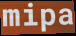
mipa